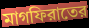
মাগফিরাতের